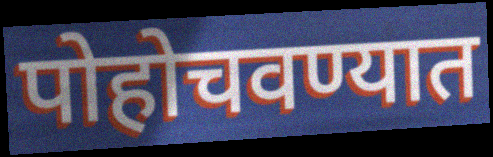
पोहोचवण्यात